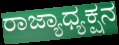
ರಾಜ್ಯಾಧ್ಯಕ್ಷನ